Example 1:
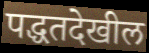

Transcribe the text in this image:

पद्धतदेखील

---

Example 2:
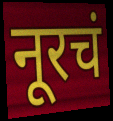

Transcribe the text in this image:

नूरचं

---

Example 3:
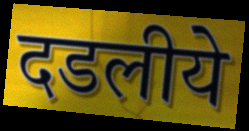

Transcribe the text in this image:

दडलीये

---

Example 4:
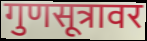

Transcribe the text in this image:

गुणसूत्रावर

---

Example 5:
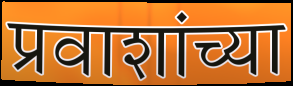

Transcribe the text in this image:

प्रवाशांच्या